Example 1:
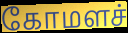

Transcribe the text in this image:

கோமளச்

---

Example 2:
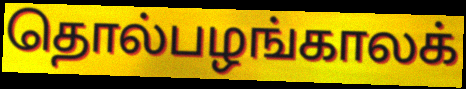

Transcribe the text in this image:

தொல்பழங்காலக்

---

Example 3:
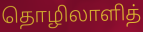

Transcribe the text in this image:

தொழிலாளித்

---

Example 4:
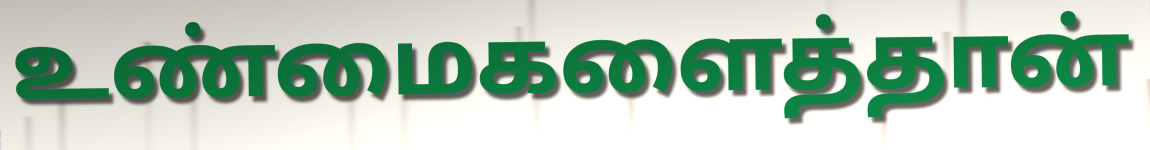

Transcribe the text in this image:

உண்மைகளைத்தான்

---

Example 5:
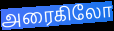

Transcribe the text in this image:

அரைகிலோ